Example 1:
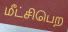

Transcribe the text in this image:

மீட்சிபெற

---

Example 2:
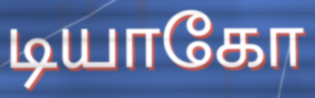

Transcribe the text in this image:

டியாகோ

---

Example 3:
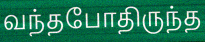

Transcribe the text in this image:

வந்தபோதிருந்த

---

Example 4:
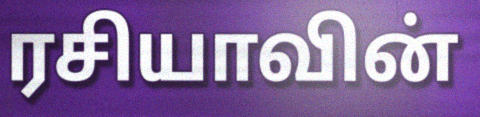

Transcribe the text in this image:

ரசியாவின்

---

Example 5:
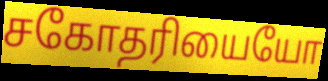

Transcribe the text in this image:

சகோதரியையோ